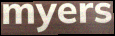
myers